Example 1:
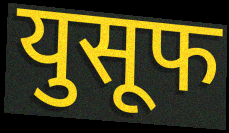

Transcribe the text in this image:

युसूफ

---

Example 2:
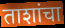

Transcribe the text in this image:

ताशांचा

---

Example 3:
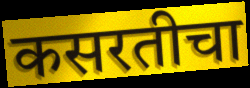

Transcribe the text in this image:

कसरतीचा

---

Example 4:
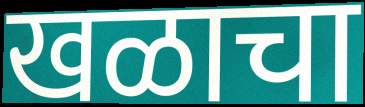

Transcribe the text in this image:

खळाचा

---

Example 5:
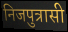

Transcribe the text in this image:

निजपुत्रासी